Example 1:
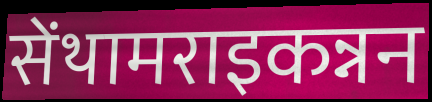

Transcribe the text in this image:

सेंथामराइकन्नन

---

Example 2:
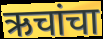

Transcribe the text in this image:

ऋचांचा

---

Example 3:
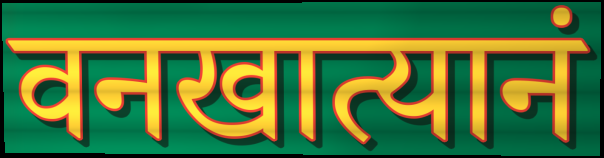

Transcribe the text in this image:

वनखात्यानं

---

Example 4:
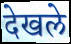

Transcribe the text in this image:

देखले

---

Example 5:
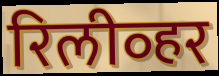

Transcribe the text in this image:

रिलीव्हर